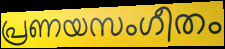
പ്രണയസംഗീതം